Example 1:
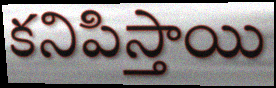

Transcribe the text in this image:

కనిపిస్తాయి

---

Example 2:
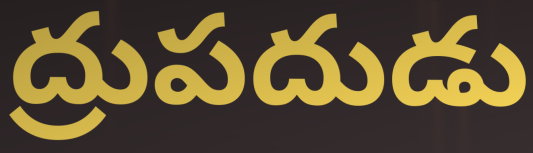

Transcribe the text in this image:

ద్రుపదుడు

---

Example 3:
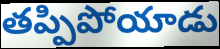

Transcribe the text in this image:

తప్పిపోయాడు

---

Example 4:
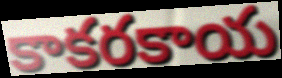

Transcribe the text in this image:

కాకరకాయ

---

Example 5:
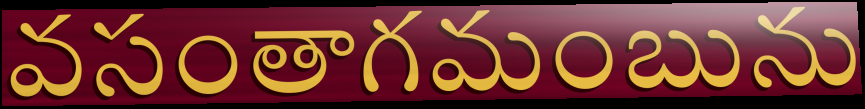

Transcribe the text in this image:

వసంతాగమంబును